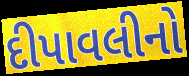
દીપાવલીનો